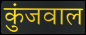
कुंजवाल